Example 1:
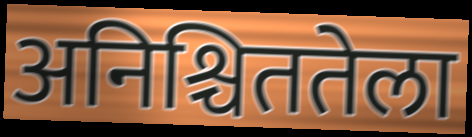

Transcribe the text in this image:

अनिश्चिततेला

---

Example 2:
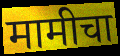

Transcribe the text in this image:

मामीचा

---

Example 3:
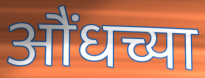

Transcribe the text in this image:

औंधच्या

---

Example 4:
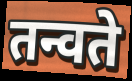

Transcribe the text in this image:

तन्वते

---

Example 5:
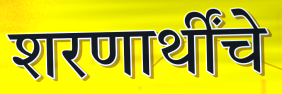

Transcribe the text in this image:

शरणार्थींचे